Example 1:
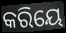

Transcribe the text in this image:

କରିୟେ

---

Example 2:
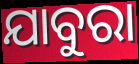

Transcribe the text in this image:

ଯାବୁରା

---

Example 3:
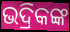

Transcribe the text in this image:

ଭଦ୍ରିକଙ୍କ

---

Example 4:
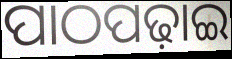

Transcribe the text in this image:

ପାଠପଢ଼ାଇ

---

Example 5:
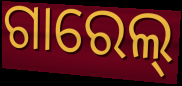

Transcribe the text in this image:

ଗାରେଲ୍